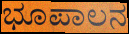
ಭೂಪಾಲನ